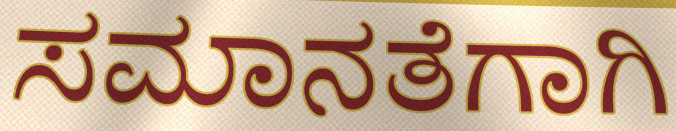
ಸಮಾನತೆಗಾಗಿ